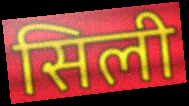
सिली